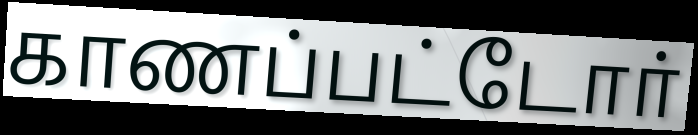
காணப்பட்டோர்